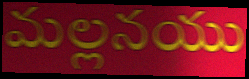
మల్లనయు